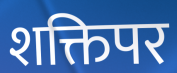
शक्तिपर